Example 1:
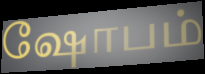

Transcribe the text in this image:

ஷோபம்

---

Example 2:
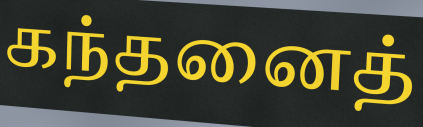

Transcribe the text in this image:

கந்தனைத்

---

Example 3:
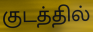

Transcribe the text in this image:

குடத்தில்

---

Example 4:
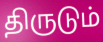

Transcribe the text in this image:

திருடும்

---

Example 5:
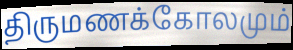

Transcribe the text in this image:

திருமணக்கோலமும்